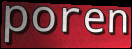
poren